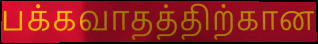
பக்கவாதத்திற்கான